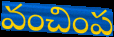
వంచింప